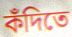
কঁদিতে